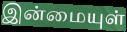
இன்மையுள்